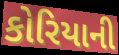
કોરિયાની